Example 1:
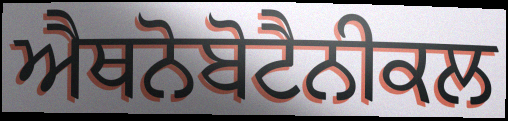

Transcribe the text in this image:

ਐਥਨੋਬੋਟੈਨੀਕਲ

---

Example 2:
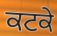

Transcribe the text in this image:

ਕਟਕੇ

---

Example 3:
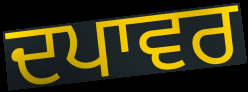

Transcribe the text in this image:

ਦਪਾਵਰ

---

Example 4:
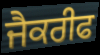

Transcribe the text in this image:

ਜੈਕਰੀਫ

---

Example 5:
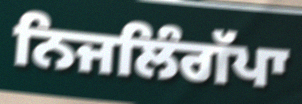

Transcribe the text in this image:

ਨਿਜਲਿੰਗੱਪਾ